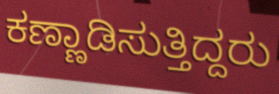
ಕಣ್ಣಾಡಿಸುತ್ತಿದ್ದರು